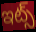
ఇట్స్